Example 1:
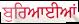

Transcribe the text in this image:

ਬੁਰਿਆਈਆਂ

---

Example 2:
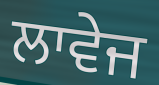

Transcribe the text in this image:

ਲਾਵੇਜ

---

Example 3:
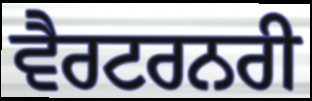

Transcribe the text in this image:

ਵੈਰਟਰਨਰੀ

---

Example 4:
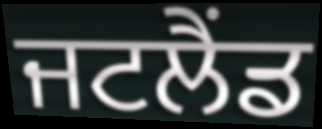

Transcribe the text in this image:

ਜਟਲੈਂਡ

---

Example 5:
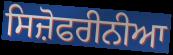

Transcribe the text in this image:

ਸਿਜ਼ੋਫਰੀਨੀਆ